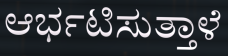
ಆರ್ಭಟಿಸುತ್ತಾಳೆ